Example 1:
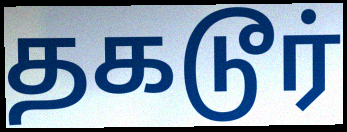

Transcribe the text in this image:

தகடூர்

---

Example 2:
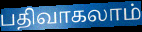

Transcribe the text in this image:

பதிவாகலாம்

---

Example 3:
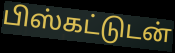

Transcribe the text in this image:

பிஸ்கட்டுடன்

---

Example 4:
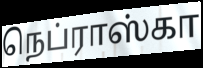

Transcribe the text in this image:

நெப்ராஸ்கா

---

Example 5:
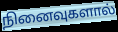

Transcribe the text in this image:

நினைவுகளால்